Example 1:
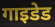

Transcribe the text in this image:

गाइडेड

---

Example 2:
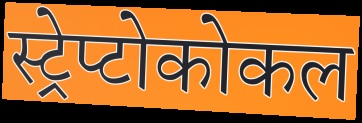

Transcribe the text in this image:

स्ट्रेप्टोकोकल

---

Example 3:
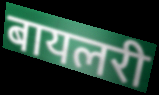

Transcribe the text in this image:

बायलरी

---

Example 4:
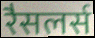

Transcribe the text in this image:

रैसलर्स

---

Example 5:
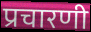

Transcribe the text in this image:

प्रचारणी